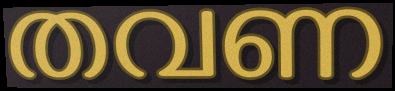
തവണ